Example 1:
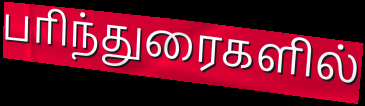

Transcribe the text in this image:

பரிந்துரைகளில்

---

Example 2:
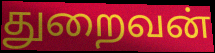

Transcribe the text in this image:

துறைவன்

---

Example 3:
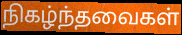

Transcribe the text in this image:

நிகழ்ந்தவைகள்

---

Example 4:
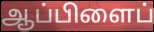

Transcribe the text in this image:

ஆப்பிளைப்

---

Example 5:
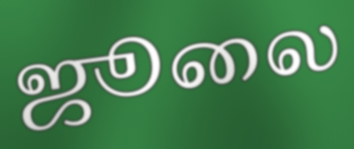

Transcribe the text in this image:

ஜூலை